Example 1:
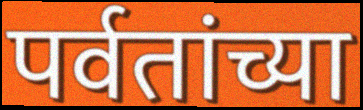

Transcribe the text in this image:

पर्वतांच्या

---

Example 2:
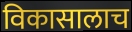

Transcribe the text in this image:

विकासालाच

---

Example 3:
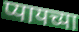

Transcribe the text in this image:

प्यायच्या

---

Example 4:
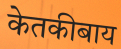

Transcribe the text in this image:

केतकीबाय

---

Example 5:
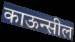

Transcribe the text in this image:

काऊन्सील